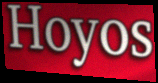
Hoyos